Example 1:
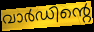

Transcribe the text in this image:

വാർഡിന്റെ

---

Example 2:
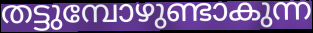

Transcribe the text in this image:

തട്ടുമ്പോഴുണ്ടാകുന്ന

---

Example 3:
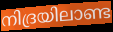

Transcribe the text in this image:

നിദ്രയിലാണ്ട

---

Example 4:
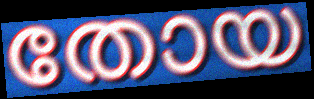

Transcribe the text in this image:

തോയ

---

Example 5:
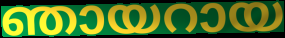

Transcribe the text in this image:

ഞായറായ